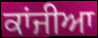
ਕਾਂਜੀਆ